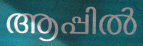
ആപ്പിൽ